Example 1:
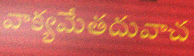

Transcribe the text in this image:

వాక్యమేతదువాచ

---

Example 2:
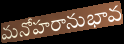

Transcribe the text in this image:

మనోహరానుభావ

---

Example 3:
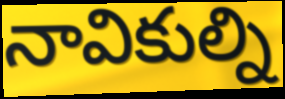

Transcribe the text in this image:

నావికుల్ని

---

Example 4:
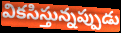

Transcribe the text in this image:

వికసిస్తున్నప్పుడు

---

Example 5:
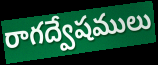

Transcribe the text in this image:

రాగద్వేషములు